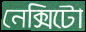
নেক্সিটো